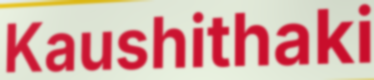
Kaushithaki